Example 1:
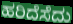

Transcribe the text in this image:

ಹರಿದೆಸೆದು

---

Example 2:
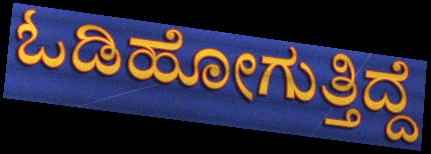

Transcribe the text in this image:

ಓಡಿಹೋಗುತ್ತಿದ್ದೆ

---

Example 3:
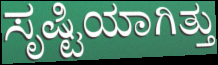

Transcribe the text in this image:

ಸೃಷ್ಟಿಯಾಗಿತ್ತು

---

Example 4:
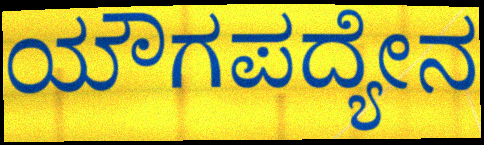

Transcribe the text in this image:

ಯೌಗಪದ್ಯೇನ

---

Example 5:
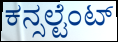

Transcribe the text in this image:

ಕನ್ಸಲ್ಟೆಂಟ್